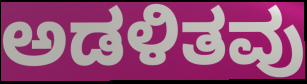
ಅಡಳಿತವು